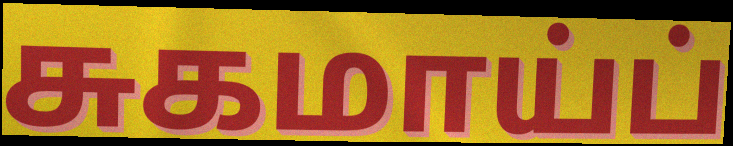
சுகமாய்ப்